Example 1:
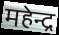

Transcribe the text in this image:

महेन्‍द्र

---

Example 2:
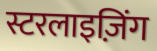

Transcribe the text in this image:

स्टरलाइज़िंग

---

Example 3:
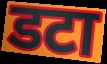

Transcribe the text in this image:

डटा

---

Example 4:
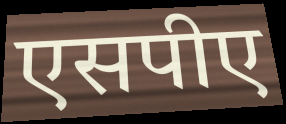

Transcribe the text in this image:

एसपीए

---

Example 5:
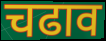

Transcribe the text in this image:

चढाव